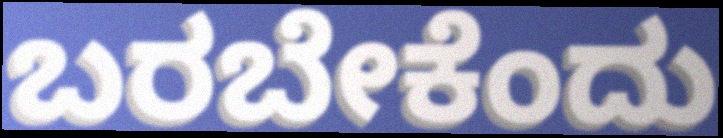
ಬರಬೇಕೆಂದು